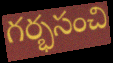
గర్భసంచి